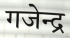
गजेन्द्र